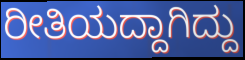
ರೀತಿಯದ್ದಾಗಿದ್ದು